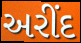
અરીંદ